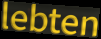
lebten